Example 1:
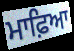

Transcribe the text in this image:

ਮਾਫ਼ਿਆ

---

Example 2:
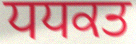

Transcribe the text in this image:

ਧਧਕਤ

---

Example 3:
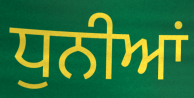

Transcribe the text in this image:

ਧੁਨੀਆਂ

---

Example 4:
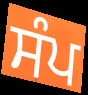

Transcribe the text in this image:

ਸੰਪ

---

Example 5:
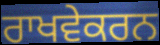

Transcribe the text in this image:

ਰਾਖਵੇਕਰਨ